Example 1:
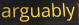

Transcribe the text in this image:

arguably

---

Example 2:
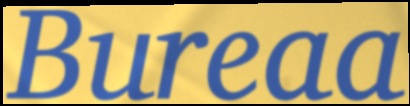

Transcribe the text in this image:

Bureaa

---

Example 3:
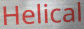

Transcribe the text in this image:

Helical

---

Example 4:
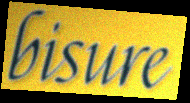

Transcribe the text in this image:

bisure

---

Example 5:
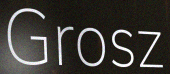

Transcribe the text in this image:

Grosz